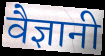
वैज्ञानी